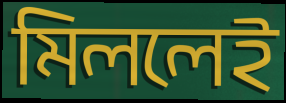
মিললেই